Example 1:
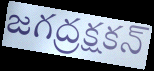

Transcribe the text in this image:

జగద్రక్షకన్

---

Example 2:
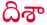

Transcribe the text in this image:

దిశా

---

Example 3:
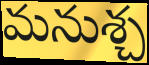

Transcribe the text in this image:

మనుశ్చ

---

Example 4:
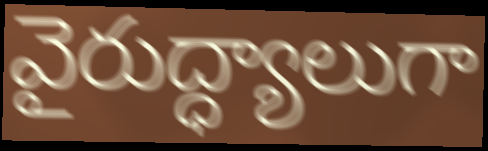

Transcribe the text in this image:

వైరుద్ధ్యాలుగా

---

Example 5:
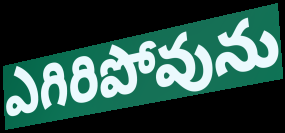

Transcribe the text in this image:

ఎగిరిపోవును